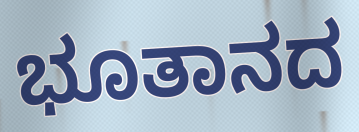
ಭೂತಾನದ